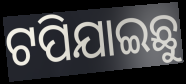
ଟପିଯାଇଛୁ